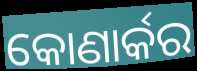
କୋଣାର୍କର